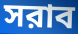
সরাব